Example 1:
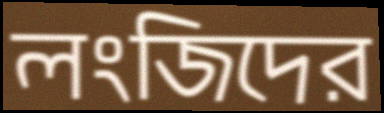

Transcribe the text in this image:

লংজিদের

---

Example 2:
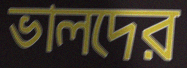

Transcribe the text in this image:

ভালদের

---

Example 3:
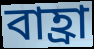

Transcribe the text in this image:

বাহ্রা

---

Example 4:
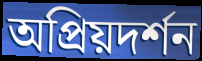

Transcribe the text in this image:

অপ্রিয়দর্শন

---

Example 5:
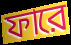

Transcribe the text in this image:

ফারে